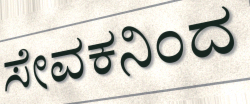
ಸೇವಕನಿಂದ